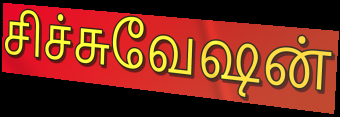
சிச்சுவேஷன்